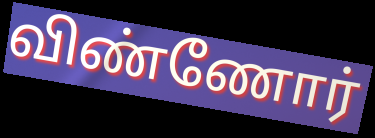
விண்ணோர்